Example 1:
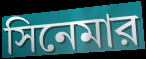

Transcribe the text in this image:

সিনেমার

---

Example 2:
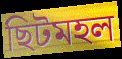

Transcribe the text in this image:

ছিটমহল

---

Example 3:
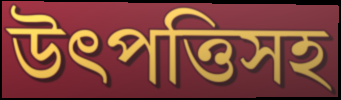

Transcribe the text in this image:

উৎপত্তিসহ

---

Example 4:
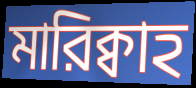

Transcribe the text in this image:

মারিক্বাহ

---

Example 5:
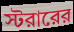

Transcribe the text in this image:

স্টরারের